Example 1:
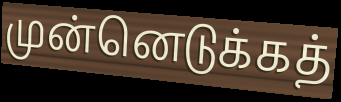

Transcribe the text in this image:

முன்னெடுக்கத்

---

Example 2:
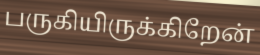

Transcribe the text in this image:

பருகியிருக்கிறேன்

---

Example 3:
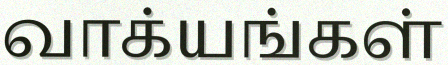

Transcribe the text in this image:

வாக்யங்கள்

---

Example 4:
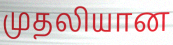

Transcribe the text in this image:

முதலியான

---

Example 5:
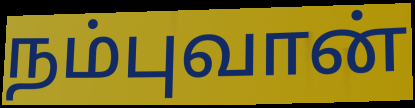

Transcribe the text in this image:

நம்புவான்